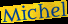
Michel